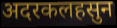
अदरकलहसुन